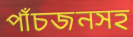
পাঁচজনসহ